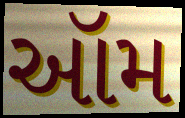
ઑમ